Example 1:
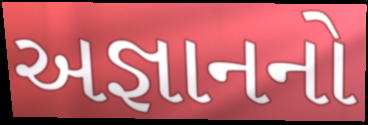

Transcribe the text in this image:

અજ્ઞાનનો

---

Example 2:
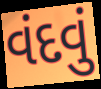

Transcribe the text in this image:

વંદવું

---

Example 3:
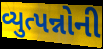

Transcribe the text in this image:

વ્યુત્પન્નોની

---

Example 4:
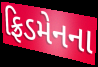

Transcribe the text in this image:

ફ્રિડમેનના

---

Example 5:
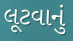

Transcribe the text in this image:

લૂટવાનું